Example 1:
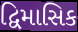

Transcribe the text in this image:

દ્વિમાસિક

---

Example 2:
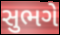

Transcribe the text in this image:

સુભગે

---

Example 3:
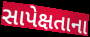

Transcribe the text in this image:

સાપેક્ષતાના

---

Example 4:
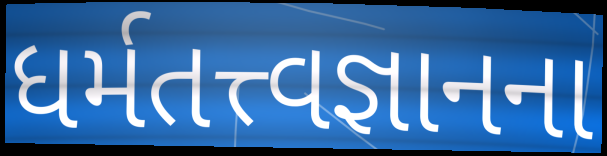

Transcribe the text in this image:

ધર્મતત્ત્વજ્ઞાનના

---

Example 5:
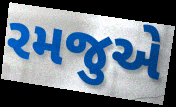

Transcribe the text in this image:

રમજુએ